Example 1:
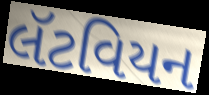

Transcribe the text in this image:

લૅટવિયન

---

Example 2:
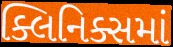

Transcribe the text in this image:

ક્લિનિક્સમાં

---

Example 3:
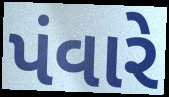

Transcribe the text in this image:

પંવારે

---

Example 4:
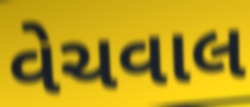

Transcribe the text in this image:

વેચવાલ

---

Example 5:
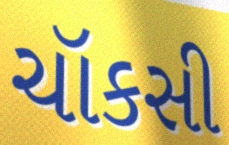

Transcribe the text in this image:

ચૉકસી